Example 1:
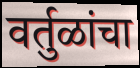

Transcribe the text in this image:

वर्तुळांचा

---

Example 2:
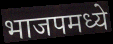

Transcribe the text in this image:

भाजपमध्ये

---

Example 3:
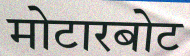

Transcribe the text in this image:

मोटारबोट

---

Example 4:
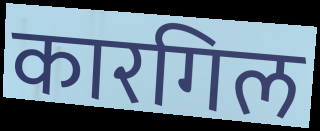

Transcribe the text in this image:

कारगिल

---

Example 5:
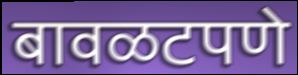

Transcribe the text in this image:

बावळटपणे